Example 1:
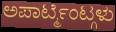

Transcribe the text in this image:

ಅಪಾರ್ಟ್ಮೆಂಟ್ಗಳು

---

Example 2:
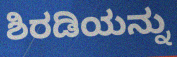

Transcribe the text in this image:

ಶಿರಡಿಯನ್ನು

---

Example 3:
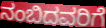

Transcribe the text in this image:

ನಂಬಿದವರಿಗೆ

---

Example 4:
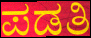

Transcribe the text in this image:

ಪಡತಿ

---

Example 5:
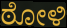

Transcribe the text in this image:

ಠೋಳಿ